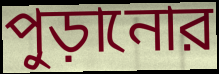
পুড়ানোর